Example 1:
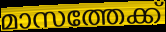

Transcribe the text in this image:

മാസത്തേക്ക്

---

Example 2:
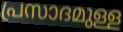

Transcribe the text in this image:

പ്രസാദമുള്ള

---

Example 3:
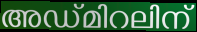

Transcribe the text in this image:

അഡ്മിറലിന്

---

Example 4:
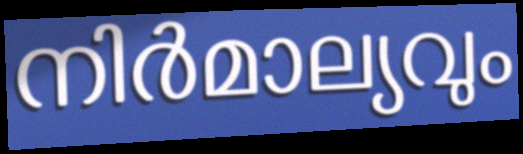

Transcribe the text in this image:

നിർമാല്യവും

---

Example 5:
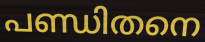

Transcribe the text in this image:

പണ്ഡിതനെ